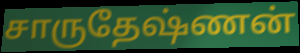
சாருதேஷ்ணன்